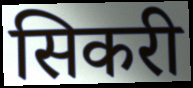
सिकरी